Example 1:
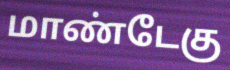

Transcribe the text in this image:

மாண்டேகு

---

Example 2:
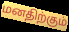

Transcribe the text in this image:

மனதிற்கும்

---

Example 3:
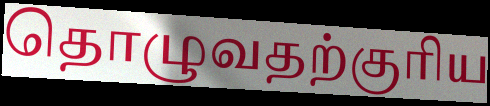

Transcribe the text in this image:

தொழுவதற்குரிய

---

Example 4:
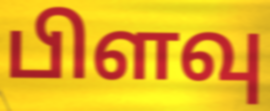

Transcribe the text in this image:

பிளவு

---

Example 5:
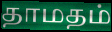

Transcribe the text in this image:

தாமதம்